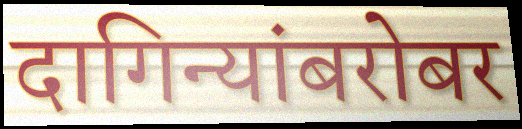
दागिन्यांबरोबर